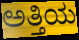
ಅತ್ತಿಯ